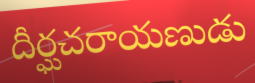
దీర్ఘచరాయణుడు